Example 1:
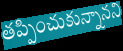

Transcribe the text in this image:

తప్పించుకున్నానని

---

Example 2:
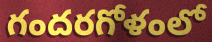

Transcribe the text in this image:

గందరగోళంలో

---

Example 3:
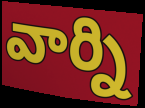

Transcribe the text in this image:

వార్ని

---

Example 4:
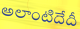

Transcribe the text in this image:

అలాంటిదేదీ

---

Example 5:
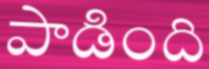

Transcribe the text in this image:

పాడింది